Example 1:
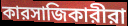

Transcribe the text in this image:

কারসাজিকারীরা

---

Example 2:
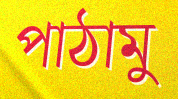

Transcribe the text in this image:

পাঠামু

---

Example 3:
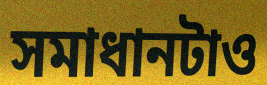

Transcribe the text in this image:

সমাধানটাও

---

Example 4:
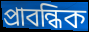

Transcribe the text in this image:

প্রাবন্ধিক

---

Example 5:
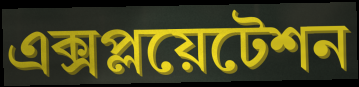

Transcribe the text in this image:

এক্সপ্লয়েটেশন